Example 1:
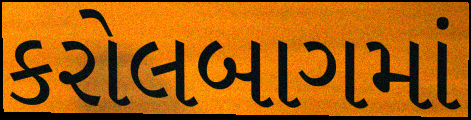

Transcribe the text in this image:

કરોલબાગમાં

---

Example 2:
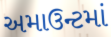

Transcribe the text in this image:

અમાઉન્ટમાં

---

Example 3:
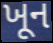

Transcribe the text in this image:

ખૂન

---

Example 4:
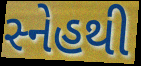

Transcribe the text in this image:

સ્નેહથી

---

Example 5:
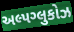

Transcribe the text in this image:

અલ્પગ્લુકોઝ